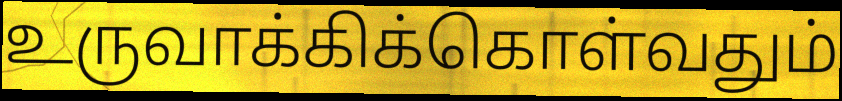
உருவாக்கிக்கொள்வதும்